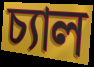
চ্যাল